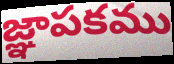
జ్ఞాపకము